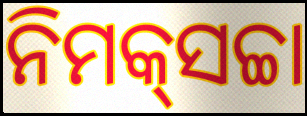
ନିମକ୍‍ସଚ୍ଚା